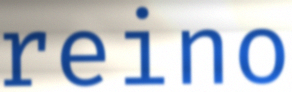
reino